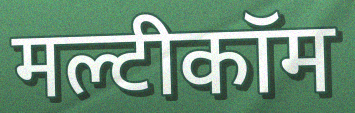
मल्टीकॉम